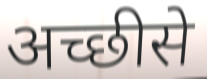
अच्छीसे